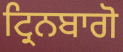
ਟ੍ਰਿਨਬਾਗੋ